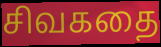
சிவகதை